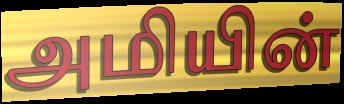
அமியின்